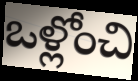
ఒళ్లోంచి